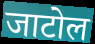
जाटोल